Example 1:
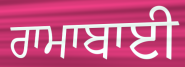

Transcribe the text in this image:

ਰਾਮਾਬਾਈ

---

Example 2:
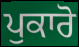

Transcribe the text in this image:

ਪੁਕਾਰੋ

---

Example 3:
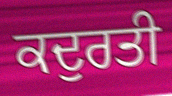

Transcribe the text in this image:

ਕਦੁਰਤੀ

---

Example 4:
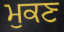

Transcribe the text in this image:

ਮੁਕਣ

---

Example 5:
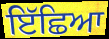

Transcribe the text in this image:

ਇੱਛਿਆ